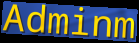
Adminm